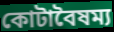
কোটাবৈষম্য